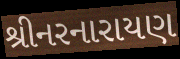
શ્રીનરનારાયણ